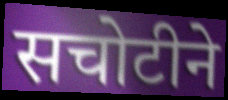
सचोटीने